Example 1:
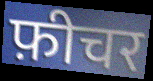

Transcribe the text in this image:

फ़ीचर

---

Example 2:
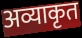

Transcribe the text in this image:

अव्याकृत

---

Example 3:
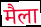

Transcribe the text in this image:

मैला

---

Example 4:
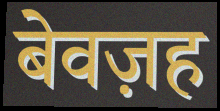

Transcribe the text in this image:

बेवज़ह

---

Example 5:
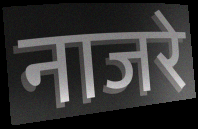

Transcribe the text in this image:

नाजरे